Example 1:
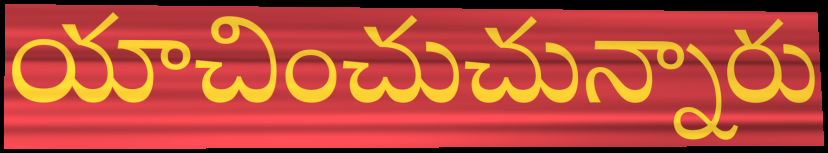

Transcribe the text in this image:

యాచించుచున్నారు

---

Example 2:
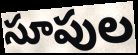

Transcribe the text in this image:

సూపుల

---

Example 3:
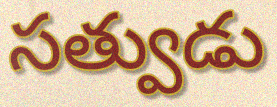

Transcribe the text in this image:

సత్వుడు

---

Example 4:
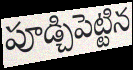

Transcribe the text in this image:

పూడ్చిపెట్టిన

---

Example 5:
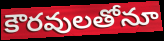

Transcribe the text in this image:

కౌరవులతోనూ